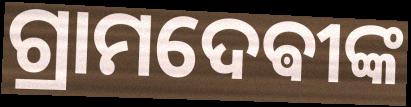
ଗ୍ରାମଦେଵୀଙ୍କ